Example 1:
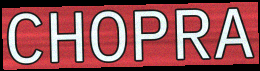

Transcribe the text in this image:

CHOPRA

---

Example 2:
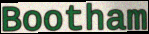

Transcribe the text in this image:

Bootham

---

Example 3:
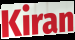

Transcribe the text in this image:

Kiran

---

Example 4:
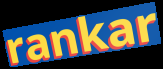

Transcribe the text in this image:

rankar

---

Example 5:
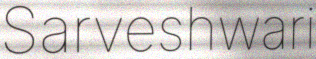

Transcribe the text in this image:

Sarveshwari